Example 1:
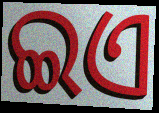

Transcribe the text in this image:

ଇଏ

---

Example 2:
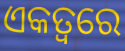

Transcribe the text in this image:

ଏକତ୍ୱରେ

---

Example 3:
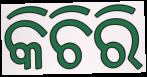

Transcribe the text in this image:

କିଚିରି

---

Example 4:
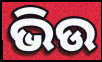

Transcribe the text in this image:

ଭିଉ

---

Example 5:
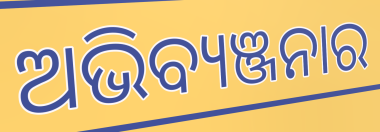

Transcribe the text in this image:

ଅଭିବ୍ୟଞ୍ଜନାର